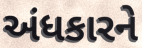
અંધકારને